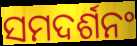
ସମଦର୍ଶନଂ